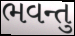
ભવન્તુ